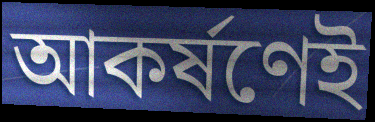
আকর্ষণেই